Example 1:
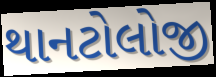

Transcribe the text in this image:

થાનટોલોજી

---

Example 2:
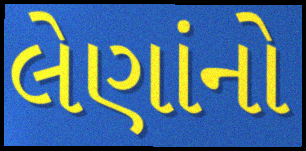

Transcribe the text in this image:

લેણાંનો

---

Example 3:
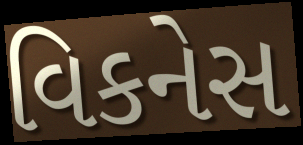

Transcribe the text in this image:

વિકનેસ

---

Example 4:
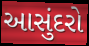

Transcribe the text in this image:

આસુંદરો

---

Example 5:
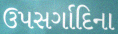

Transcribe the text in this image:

ઉપસર્ગાદિના